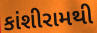
કાંશીરામથી